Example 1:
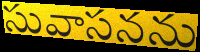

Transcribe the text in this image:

సువాసనను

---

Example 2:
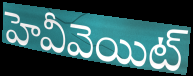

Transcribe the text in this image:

హెవీవెయిట్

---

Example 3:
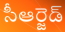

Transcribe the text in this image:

సీఆర్జెడ్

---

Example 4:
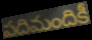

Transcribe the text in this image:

పదిమందికీ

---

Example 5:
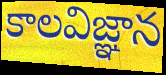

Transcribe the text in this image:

కాలవిజ్ఞాన